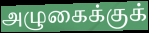
அழுகைக்குக்